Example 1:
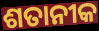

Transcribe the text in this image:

ଶତାନୀକ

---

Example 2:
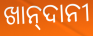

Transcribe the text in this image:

ଖାନ୍‍ଦାନୀ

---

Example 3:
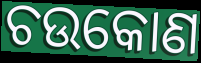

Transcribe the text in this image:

ଚଉକୋଣ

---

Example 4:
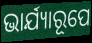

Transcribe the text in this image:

ଭାର୍ଯ୍ୟାରୂପେ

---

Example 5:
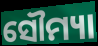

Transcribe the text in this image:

ସୌମ୍ୟା